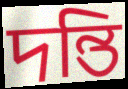
দন্তি